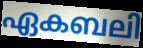
ഏകബലി